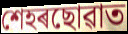
শেহৰছোৱাত